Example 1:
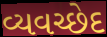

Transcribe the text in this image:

વ્યવચ્છેદ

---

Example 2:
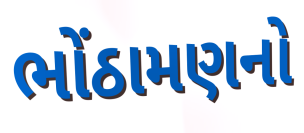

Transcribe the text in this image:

ભોંઠામણનો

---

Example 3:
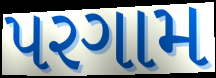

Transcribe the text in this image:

પરગામ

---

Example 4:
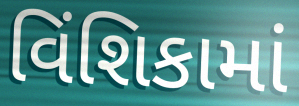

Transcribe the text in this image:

વિંશિકામાં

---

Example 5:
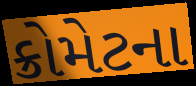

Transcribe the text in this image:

ક્રોમેટના